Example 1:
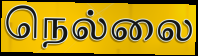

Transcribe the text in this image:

நெல்லை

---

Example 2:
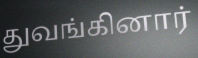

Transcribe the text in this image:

துவங்கினார்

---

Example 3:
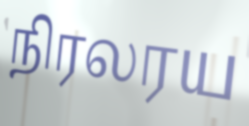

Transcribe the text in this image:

நிரலரய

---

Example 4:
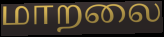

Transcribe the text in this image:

மாறலை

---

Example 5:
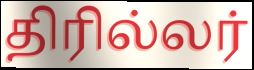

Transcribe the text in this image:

திரில்லர்